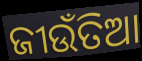
ଜୀଉଁତିଆ